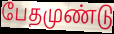
பேதமுண்டு